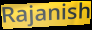
Rajanish